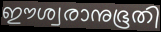
ഈശ്വരാനുഭൂതി